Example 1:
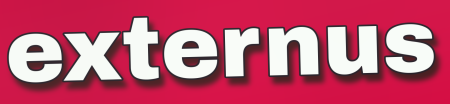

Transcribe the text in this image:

externus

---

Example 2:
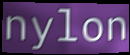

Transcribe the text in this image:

nylon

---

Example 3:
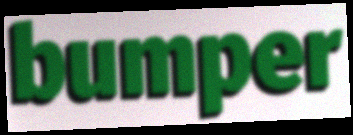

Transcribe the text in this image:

bumper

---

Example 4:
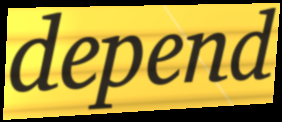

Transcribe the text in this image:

depend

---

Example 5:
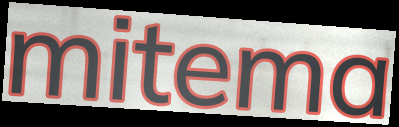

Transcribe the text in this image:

mitema